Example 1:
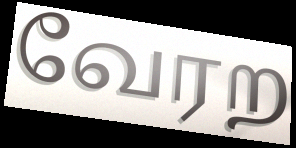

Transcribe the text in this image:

வேரற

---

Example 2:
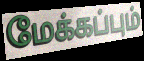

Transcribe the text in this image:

மேக்கப்பும்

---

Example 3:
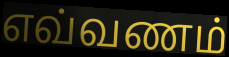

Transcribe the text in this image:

எவ்வணம்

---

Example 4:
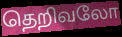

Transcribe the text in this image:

தெறிவலோ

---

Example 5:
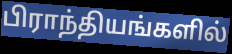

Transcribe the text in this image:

பிராந்தியங்களில்